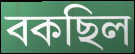
বকছিল